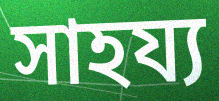
সাহয্য